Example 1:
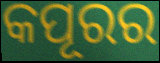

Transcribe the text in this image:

କପୂରର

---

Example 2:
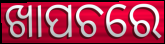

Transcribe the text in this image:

ଖାପଚରେ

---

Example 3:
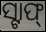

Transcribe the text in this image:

ସ୍ଟାଫ୍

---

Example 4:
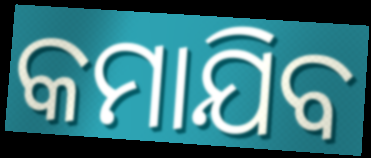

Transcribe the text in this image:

କମାଯିବ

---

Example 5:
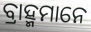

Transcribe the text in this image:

ବ୍ରାହ୍ମମାନେ